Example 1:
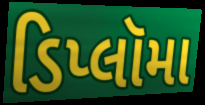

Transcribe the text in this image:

ડિપ્લૉમા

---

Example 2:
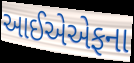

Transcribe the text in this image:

આઈએએફના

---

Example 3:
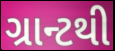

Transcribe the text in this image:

ગ્રાન્ટથી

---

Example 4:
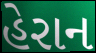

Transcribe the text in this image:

હેરાન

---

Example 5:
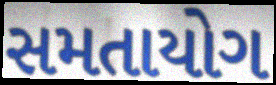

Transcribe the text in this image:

સમતાયોગ